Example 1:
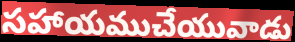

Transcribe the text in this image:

సహాయముచేయువాడు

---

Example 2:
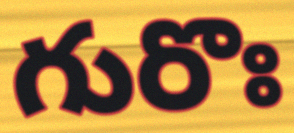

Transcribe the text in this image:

గురొః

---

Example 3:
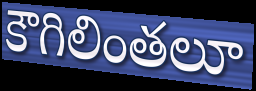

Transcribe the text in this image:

కౌగిలింతలూ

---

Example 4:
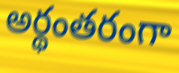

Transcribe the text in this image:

అర్థంతరంగా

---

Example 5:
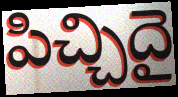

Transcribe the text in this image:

పిచ్చిదై